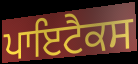
ਪਾਇਟੈਕਸ